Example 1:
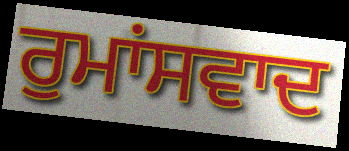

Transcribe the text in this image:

ਰੁਮਾਂਸਵਾਦ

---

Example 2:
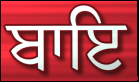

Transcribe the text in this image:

ਬਾਇ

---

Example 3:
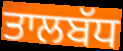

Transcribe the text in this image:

ਤਾਲਬੱਧ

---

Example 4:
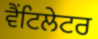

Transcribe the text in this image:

ਵੈਂਟਿਲੇਟਰ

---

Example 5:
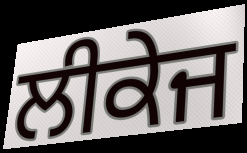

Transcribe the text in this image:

ਲੀਕੇਜ